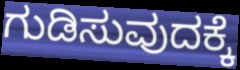
ಗುಡಿಸುವುದಕ್ಕೆ